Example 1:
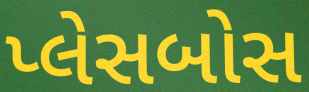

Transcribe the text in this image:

પ્લેસબોસ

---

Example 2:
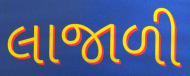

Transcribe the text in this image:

લાજાળી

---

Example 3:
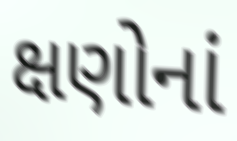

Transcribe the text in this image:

ક્ષણોનાં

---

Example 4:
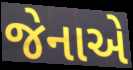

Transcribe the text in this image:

જેનાએ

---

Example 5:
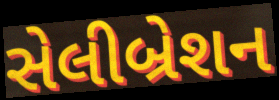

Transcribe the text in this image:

સેલીબ્રેશન